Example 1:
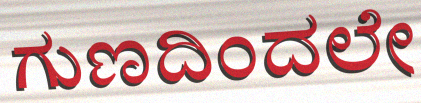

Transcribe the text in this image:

ಗುಣದಿಂದಲೇ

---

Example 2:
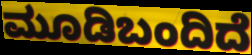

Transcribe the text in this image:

ಮೂಡಿಬಂದಿದೆ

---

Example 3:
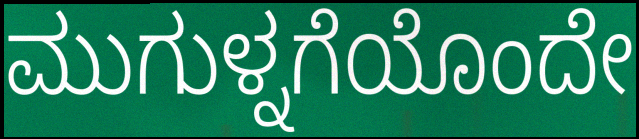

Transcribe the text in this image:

ಮುಗುಳ್ನಗೆಯೊಂದೇ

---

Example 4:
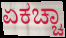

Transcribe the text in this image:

ಏಕಚ್ಚಾ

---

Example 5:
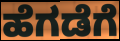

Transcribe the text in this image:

ಹೆಗಡೆಗೆ